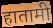
हातामी